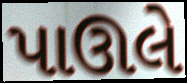
પાઊલે